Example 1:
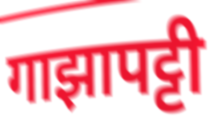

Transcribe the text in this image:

गाझापट्टी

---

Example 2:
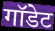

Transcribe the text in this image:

गॉडेट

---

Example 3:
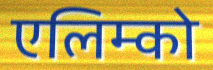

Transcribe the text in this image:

एलिम्को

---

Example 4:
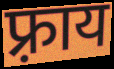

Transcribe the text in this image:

फ़्राय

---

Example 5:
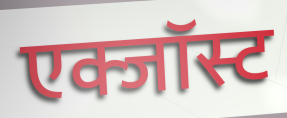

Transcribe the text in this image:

एक्जॉस्ट